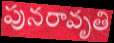
పునరావృతి